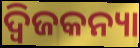
ଦ୍ୱିଜକନ୍ୟା